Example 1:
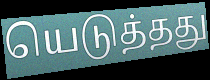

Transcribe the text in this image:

யெடுத்தது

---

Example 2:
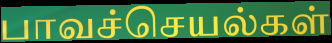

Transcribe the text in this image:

பாவச்செயல்கள்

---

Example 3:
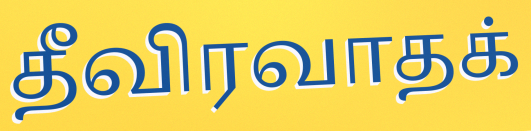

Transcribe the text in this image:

தீவிரவாதக்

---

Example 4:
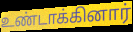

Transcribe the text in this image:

உண்டாக்கினார்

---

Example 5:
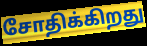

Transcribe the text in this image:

சோதிக்கிறது